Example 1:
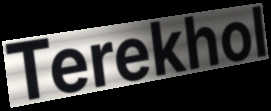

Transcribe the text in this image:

Terekhol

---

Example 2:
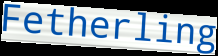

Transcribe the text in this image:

Fetherling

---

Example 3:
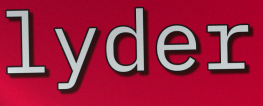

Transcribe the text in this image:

lyder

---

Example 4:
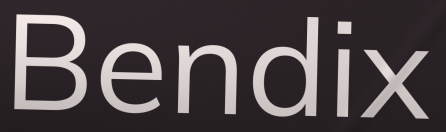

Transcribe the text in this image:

Bendix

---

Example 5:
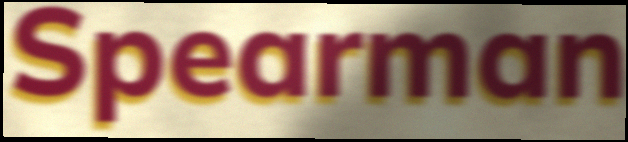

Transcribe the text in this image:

Spearman